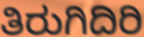
ತಿರುಗಿದಿರಿ